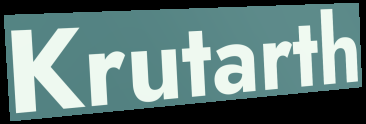
Krutarth